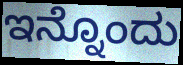
ಇನ್ನೊಂದು